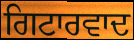
ਗਿਟਾਰਵਾਦ